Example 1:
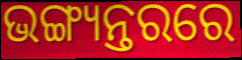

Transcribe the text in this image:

ଭଙ୍ଗ୍ୟନ୍ତରରେ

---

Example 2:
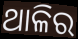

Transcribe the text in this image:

ଥାଳିର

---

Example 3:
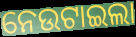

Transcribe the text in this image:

ନେଉଟାଇଲା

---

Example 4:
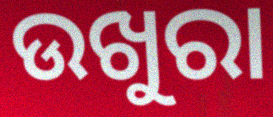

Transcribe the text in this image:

ଉଖୁରା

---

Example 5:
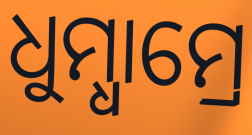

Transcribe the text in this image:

ଧୁମ୍ଧାମ୍ରେ